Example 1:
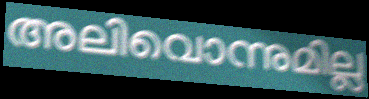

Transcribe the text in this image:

അലിവൊന്നുമില്ല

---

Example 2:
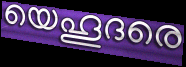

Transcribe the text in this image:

യെഹൂദരെ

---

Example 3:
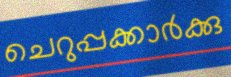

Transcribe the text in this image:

ചെറുപ്പക്കാർക്കു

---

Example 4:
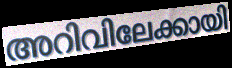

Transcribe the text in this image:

അറിവിലേക്കായി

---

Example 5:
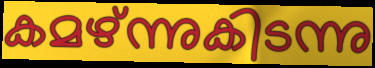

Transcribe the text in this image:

കമഴ്ന്നുകിടന്നു